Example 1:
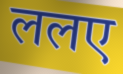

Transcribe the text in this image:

ललए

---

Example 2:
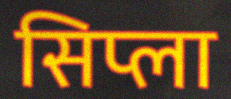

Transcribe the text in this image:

सिप्ला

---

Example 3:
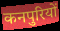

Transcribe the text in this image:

कनपुरियों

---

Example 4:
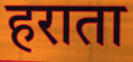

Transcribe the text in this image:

हराता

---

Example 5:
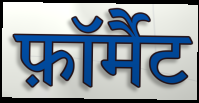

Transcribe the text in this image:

फ़ॉर्मैट